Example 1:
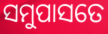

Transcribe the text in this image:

ସମୁପାସତେ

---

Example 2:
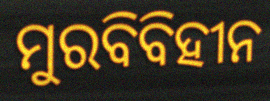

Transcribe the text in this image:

ମୁରବିବିହୀନ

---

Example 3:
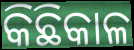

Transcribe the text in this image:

କିଛିକାଳ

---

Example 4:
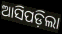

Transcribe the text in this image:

ଆସିପଡ଼ିଲା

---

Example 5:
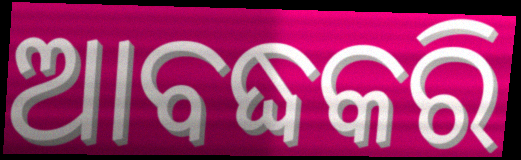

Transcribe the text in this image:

ଆବଦ୍ଧକରି